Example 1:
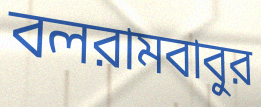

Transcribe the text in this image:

বলরামবাবুর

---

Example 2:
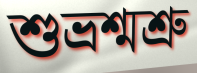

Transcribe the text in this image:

শুভ্রশ্মশ্রু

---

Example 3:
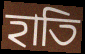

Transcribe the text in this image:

হাতি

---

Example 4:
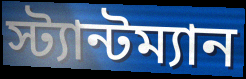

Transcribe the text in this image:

স্ট্যান্টম্যান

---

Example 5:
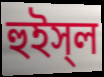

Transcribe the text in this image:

হুইস্‌ল